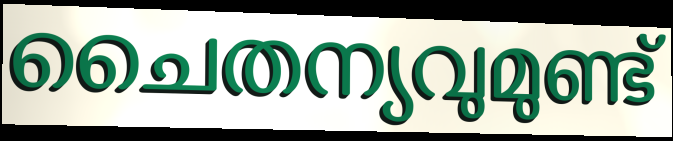
ചൈതന്യവുമുണ്ട്